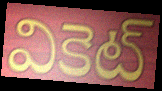
వికెట్